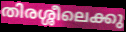
തിരശ്ശീലെക്കു